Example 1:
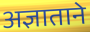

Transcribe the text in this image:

अज्ञाताने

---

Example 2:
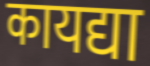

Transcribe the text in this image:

कायद्या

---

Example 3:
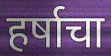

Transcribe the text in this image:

हर्षाचा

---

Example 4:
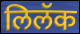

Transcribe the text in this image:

लिलॅक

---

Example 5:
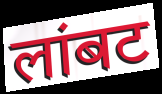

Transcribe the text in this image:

लांबट